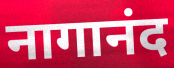
नागानंद